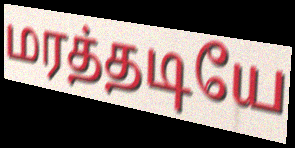
மரத்தடியே